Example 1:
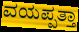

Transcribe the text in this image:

ವಯಪ್ಪತ್ತಾ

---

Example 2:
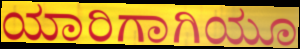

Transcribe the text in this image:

ಯಾರಿಗಾಗಿಯೂ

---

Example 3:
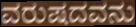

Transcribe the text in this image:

ವರುಷದವನು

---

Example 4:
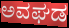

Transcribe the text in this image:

ಅವಘಡ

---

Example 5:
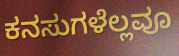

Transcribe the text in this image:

ಕನಸುಗಳೆಲ್ಲವೂ